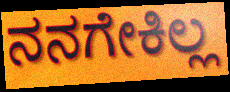
ನನಗೇಕಿಲ್ಲ